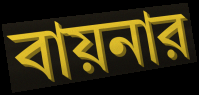
বায়নার